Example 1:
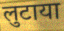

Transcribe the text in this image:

लुटाया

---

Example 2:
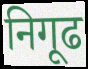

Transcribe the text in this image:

निगूढ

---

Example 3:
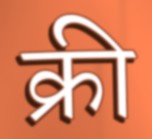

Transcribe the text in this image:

क्री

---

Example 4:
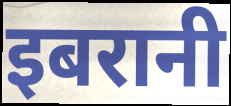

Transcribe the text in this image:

इबरानी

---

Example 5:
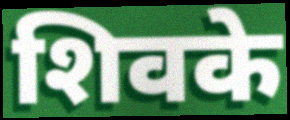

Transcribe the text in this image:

शिवके